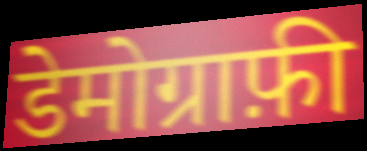
डेमोग्राफ़ी